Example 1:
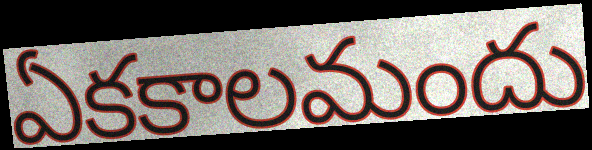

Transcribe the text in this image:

ఏకకాలమందు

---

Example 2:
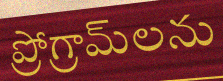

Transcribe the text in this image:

ప్రోగ్రామ్‌లను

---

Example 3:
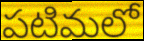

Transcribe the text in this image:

పటిమలో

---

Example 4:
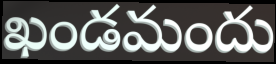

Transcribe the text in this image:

ఖండమందు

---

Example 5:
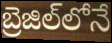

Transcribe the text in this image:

బ్రెజిల్‌లోనే